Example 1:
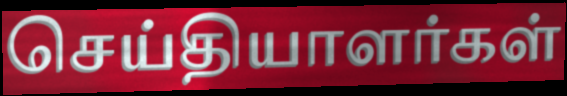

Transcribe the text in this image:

செய்தியாளர்கள்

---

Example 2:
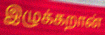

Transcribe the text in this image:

இழுக்கறான்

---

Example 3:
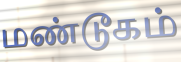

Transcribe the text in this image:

மண்டூகம்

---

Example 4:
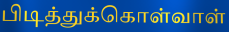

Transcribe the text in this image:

பிடித்துக்கொள்வாள்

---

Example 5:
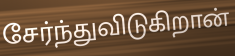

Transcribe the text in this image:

சேர்ந்துவிடுகிறான்